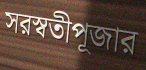
সরস্বতীপূজার